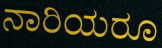
ನಾರಿಯರೂ